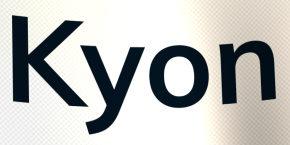
Kyon